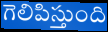
గెలిపిస్తుంది